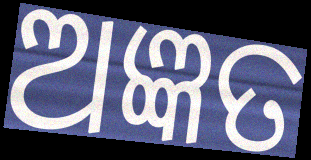
ଅଜ୍ଞତ